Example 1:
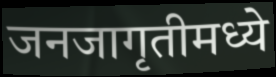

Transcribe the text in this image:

जनजागृतीमध्ये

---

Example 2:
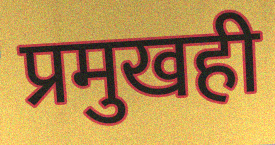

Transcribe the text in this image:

प्रमुखही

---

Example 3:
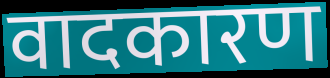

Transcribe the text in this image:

वादकारण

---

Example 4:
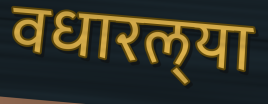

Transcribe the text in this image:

वधारल्या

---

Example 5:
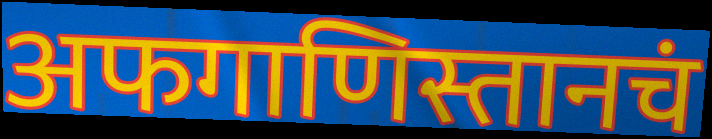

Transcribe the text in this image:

अफगाणिस्तानचं